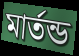
মার্তন্ড